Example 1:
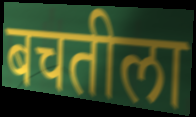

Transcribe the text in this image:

बचतीला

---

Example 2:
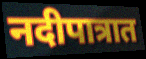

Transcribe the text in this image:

नदीपात्रात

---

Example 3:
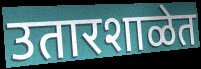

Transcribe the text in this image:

उतारशाळेत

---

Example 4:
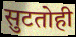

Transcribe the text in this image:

सुटतोही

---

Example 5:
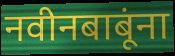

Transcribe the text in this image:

नवीनबाबूंना